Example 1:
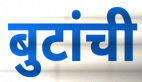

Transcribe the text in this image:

बुटांची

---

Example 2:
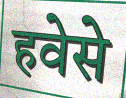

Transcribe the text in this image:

हवेसे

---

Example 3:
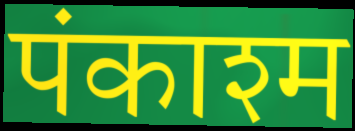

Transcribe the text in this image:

पंकाश्म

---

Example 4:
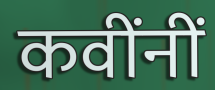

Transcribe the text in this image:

कवींनीं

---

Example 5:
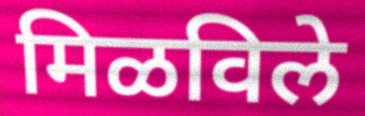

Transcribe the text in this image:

मिळविले